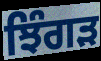
ਝਿੰਗੜ